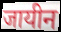
जायीन